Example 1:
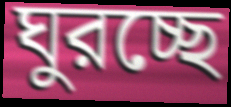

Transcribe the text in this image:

ঘুরচ্ছে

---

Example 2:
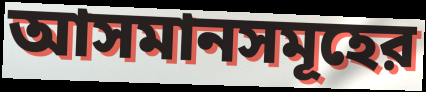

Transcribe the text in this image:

আসমানসমূহের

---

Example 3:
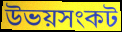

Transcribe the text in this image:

উভয়সংকট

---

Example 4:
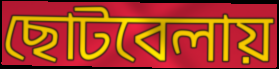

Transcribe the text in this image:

ছোটবেলায়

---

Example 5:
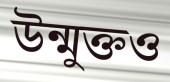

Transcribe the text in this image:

উন্মুক্তও